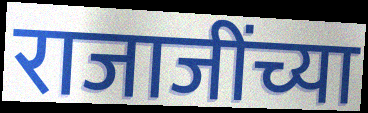
राजाजींच्या